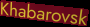
Khabarovsk